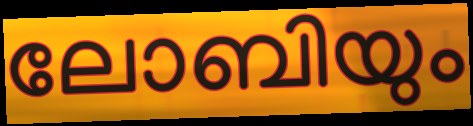
ലോബിയും